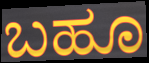
ಬಹೂ